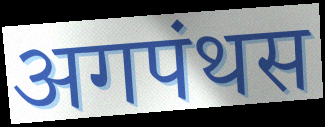
अगपंथस